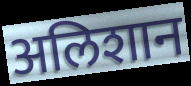
अलिशान